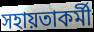
সহায়তাকর্মী